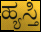
ಹ್ಯಸ್ತಿ